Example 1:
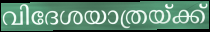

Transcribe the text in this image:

വിദേശയാത്രയ്ക്ക്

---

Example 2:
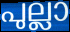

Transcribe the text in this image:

പുല്ലാ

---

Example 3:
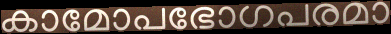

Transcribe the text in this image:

കാമോപഭോഗപരമാ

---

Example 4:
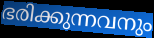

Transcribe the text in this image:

ഭരിക്കുന്നവനും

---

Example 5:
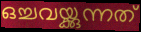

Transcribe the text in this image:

ഒച്ചവയ്ക്കുന്നത്